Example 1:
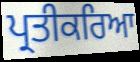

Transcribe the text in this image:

ਪ੍ਰਤੀਕਰਿਆ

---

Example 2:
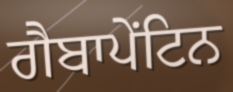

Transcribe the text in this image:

ਗੈਬਾਪੇਂਟਿਨ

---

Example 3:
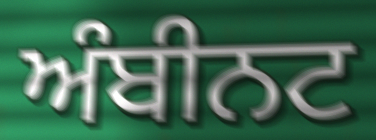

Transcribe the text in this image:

ਅੰਬੀਨਟ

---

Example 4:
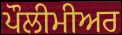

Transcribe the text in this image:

ਪੌਲੀਮੀਅਰ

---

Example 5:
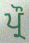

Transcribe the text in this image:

ਪ੍ਰੌ